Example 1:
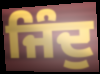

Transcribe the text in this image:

ਜਿੰਦੁ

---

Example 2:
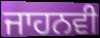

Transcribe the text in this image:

ਜਾਹਨਵੀ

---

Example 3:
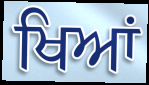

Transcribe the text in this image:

ਖਿਆਂ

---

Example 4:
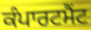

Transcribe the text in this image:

ਕੰਪਾਰਟਮੈਂਟ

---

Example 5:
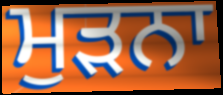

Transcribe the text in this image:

ਮੁਡ਼ਨਾ